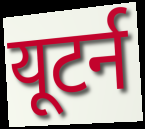
यूटर्न